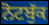
ਨੋਟਬੁੱਕ